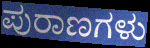
ಪುರಾಣಗಳು